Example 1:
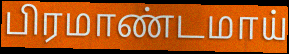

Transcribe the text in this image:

பிரமாண்டமாய்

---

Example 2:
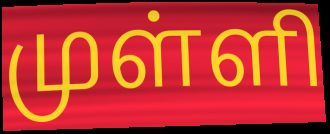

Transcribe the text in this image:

முள்ளி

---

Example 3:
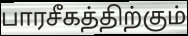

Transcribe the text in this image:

பாரசீகத்திற்கும்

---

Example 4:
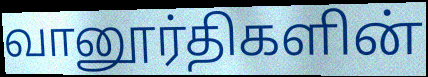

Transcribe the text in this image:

வானூர்திகளின்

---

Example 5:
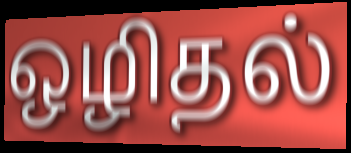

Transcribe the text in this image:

ஒழிதல்